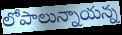
లోపాలున్నాయన్న